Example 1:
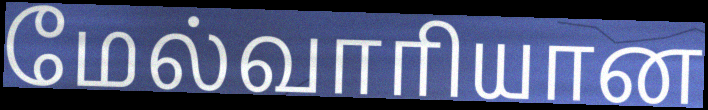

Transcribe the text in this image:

மேல்வாரியான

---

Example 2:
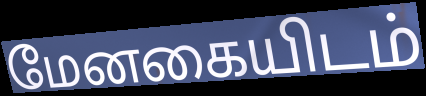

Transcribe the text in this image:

மேனகையிடம்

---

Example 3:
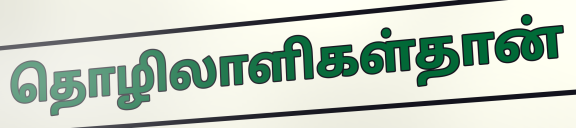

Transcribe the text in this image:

தொழிலாளிகள்தான்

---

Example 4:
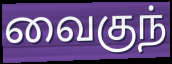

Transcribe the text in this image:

வைகுந்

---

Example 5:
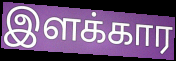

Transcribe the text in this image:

இளக்கார